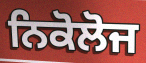
ਨਿਕੋਲੋਜ